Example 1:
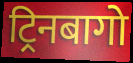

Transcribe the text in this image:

ट्रिनबागो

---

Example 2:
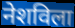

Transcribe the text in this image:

नेशविला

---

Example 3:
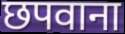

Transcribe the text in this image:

छपवाना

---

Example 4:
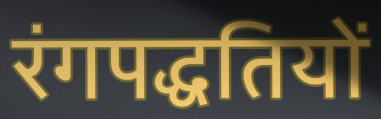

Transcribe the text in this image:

रंगपद्धतियों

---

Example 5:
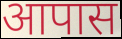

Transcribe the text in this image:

आपास